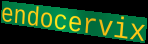
endocervix